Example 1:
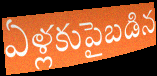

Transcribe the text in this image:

ఏళ్లకుపైబడిన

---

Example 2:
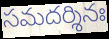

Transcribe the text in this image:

సమదర్శినః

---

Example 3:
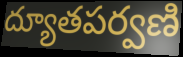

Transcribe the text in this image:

ద్యూతపర్వణి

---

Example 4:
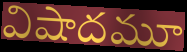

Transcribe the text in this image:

విషాదమూ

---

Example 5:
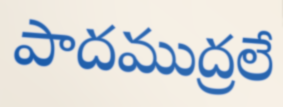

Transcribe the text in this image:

పాదముద్రలే